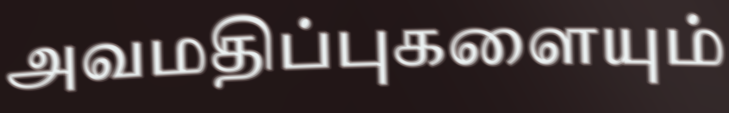
அவமதிப்புகளையும்